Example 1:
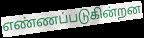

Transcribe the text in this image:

எண்ணப்படுகின்றன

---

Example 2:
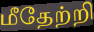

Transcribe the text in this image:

மீதேற்றி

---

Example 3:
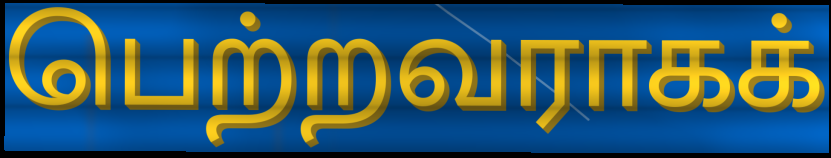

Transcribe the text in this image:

பெற்றவராகக்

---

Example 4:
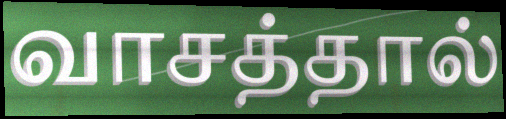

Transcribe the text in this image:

வாசத்தால்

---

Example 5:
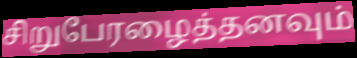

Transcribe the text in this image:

சிறுபேரழைத்தனவும்